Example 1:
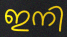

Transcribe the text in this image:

ഇനി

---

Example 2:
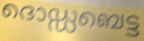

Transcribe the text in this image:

ദൊഡ്ഡബെട്ട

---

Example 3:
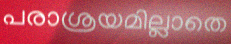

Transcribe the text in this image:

പരാശ്രയമില്ലാതെ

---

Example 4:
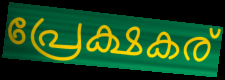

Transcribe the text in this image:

പ്രേക്ഷകര്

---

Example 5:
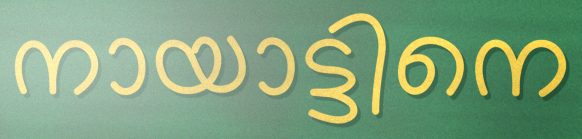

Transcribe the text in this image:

നായാട്ടിനെ